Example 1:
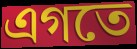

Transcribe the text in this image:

এগতে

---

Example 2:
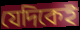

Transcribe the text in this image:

যেদিকেই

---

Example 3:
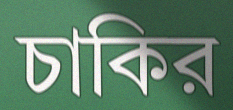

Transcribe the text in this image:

চাকির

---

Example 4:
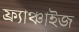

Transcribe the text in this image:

ফ্র্যাঞ্চাইজ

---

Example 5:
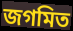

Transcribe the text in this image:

জগমিত